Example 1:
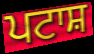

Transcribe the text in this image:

ਪਟਾਸ਼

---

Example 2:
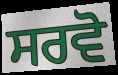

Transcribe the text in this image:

ਸਰਵੋ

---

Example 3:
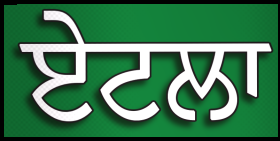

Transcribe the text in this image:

ਏਟਲਾ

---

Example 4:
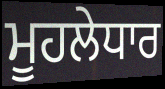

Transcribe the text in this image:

ਮੂਹਲੇਧਾਰ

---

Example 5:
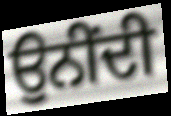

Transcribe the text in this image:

ਉਨੀਂਦੀ